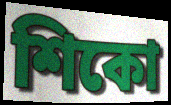
শিকো